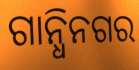
ଗାନ୍ଧିନଗର